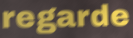
regarde